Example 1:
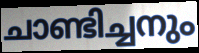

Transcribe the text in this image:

ചാണ്ടിച്ചനും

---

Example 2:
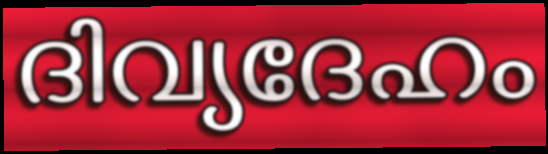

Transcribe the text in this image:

ദിവ്യദേഹം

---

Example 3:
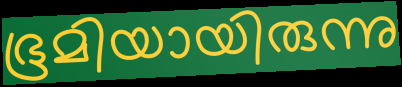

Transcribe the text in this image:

ഭൂമിയായിരുന്നു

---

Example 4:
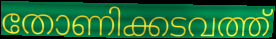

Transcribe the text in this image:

തോണിക്കടവത്ത്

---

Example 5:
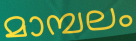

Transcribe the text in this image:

മാമ്പലം